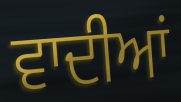
ਵਾਦੀਆਂ